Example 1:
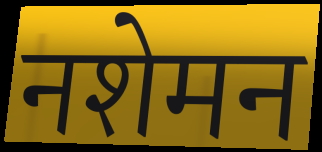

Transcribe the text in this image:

नशेमन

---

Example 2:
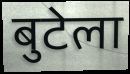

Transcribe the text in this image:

बुटेला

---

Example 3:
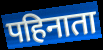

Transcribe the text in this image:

पहिनाता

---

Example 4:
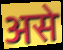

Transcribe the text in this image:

असे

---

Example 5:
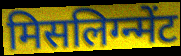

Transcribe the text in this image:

मिसलिग्न्मेंट